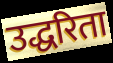
उद्धरिता